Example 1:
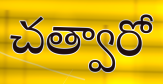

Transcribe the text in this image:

చత్వారో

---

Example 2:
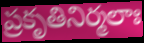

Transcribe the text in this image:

ప్రకృతినిర్మలాః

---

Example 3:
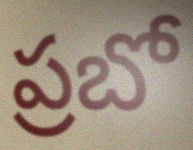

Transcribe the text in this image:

ప్రబో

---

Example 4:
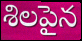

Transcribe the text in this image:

శిలపైన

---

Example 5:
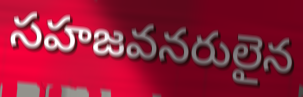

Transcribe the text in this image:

సహజవనరులైన